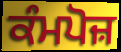
ਕੰਮਪੋਜ਼